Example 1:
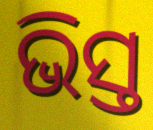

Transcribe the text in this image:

ଭିସ୍ତ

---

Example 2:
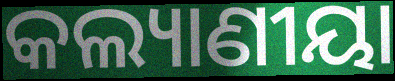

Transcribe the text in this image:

କଲ୍ୟାଣୀୟା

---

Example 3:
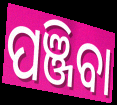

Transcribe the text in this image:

ପଞ୍ଜିବା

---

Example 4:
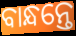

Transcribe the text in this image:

ବାନ୍ଧନ୍ତେ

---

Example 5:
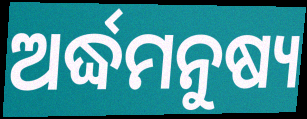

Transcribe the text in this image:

ଅର୍ଦ୍ଧମନୁଷ୍ୟ